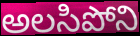
అలసిపోని